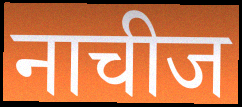
नाचीज